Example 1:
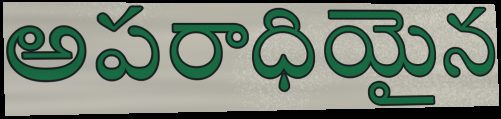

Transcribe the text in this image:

అపరాధియైన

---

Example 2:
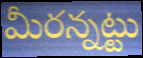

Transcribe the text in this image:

మీరన్నట్టు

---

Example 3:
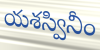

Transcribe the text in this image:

యశస్వినీం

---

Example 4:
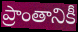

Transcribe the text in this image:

ప్రాంతానికీ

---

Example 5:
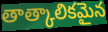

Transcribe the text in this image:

తాత్కాలికమైన